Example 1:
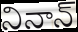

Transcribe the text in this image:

నినాన్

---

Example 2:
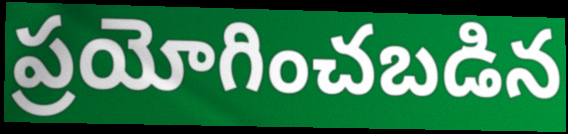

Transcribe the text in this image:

ప్రయోగించబడిన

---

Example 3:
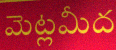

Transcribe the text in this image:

మెట్లమీద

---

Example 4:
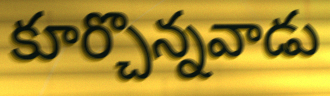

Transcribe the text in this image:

కూర్చొన్నవాడు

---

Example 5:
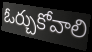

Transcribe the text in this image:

ఓర్చుకోవాలి